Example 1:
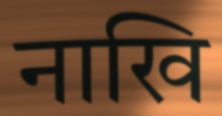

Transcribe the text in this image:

नाखि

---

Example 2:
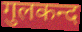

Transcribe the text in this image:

गुलकन्द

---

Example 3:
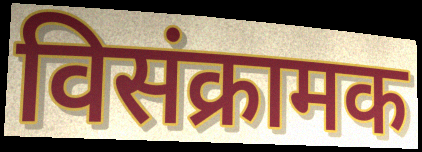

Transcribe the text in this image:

विसंक्रामक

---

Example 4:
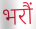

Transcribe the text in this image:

भरौं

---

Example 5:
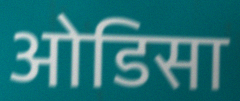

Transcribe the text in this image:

ओडिसा